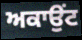
ਅਕਾਉਂਟ